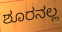
ಶೂರನಲ್ಲ